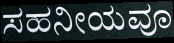
ಸಹನೀಯವೂ